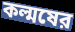
কল্মষের